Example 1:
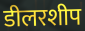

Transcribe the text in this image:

डीलरशीप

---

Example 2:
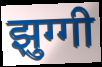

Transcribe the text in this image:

झुग्गी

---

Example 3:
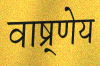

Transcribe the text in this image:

वाष्र्णेय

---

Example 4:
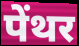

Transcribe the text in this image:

पेंथर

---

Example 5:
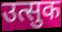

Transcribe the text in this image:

उत्सुक